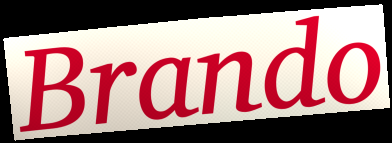
Brando